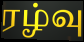
ரழ்வு